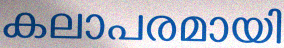
കലാപരമായി